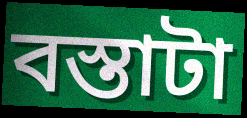
বস্তাটা